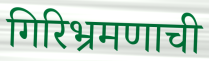
गिरिभ्रमणाची